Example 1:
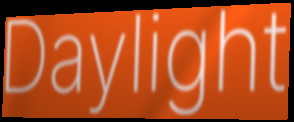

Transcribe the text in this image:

Daylight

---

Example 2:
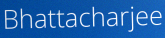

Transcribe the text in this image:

Bhattacharjee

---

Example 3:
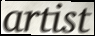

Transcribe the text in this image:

artist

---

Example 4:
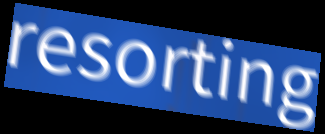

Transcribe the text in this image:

resorting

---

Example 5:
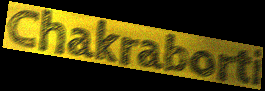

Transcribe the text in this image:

Chakraborti